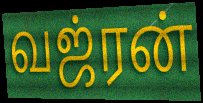
வஜ்ரன்